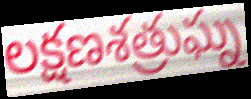
లక్షణశత్రుఘ్న